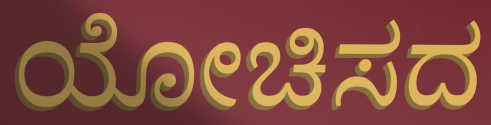
ಯೋಚಿಸದ